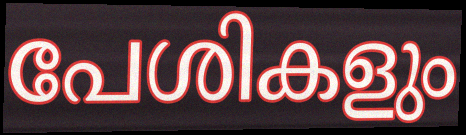
പേശികളും